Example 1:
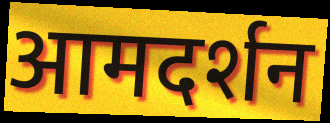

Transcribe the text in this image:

आमदर्शन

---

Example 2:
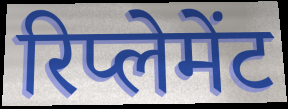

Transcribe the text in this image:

रिप्लेमेंट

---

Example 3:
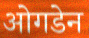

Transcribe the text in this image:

ओगडेन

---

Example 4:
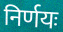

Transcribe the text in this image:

निर्णयः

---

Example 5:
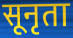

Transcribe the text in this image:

सूनृता